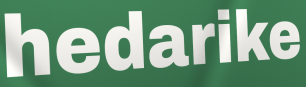
hedarike